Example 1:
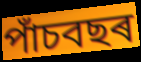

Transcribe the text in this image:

পাঁচবছৰ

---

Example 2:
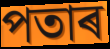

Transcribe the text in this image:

পতাৰ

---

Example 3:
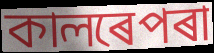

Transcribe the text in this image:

কালৰেপৰা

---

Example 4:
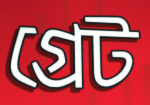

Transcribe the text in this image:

গ্ৰেট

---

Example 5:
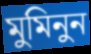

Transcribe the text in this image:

মুমিনুন